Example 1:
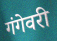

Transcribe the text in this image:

गंगेवरी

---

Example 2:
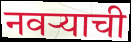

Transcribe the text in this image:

नवर्‍याची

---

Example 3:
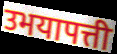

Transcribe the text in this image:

उभयापत्ती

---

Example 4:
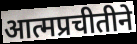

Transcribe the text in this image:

आत्मप्रचीतीने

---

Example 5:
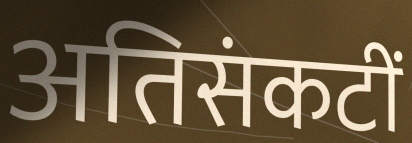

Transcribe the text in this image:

अतिसंकटीं